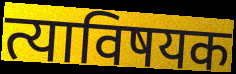
त्याविषयक